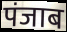
पंजाब